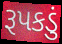
રૂપકડું